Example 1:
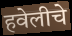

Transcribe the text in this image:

हवेलीचे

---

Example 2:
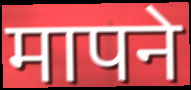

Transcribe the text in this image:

मापने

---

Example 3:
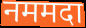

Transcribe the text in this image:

नममदा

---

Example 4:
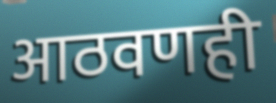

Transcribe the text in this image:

आठवणही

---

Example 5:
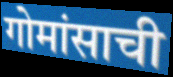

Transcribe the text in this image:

गोमांसाची